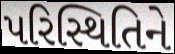
પરિસ્થિતિને